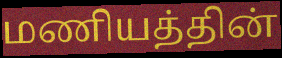
மணியத்தின்